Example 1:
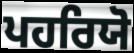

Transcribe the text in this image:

ਪਹਰਿਯੋ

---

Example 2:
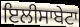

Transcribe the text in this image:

ਇਲੀਸਾਬੇਟਾ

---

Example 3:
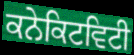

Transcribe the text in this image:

ਕਨੇਕਿਟਵਿਟੀ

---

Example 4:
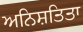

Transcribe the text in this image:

ਅਨਿਸ਼ਤਿਤਾ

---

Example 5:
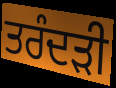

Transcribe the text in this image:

ਤਰੰਦੜੀ